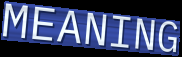
MEANING